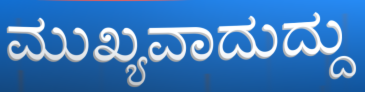
ಮುಖ್ಯವಾದುದ್ದು